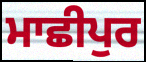
ਮਾਛੀਪੁਰ